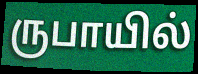
ருபாயில்